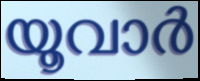
യൂവാർ